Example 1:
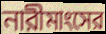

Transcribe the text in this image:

নারীমাংসের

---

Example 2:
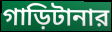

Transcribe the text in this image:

গাড়িটানার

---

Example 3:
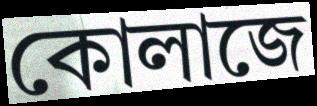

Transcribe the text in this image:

কোলাজে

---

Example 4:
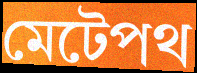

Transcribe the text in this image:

মেটেপথ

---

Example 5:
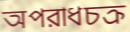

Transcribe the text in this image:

অপরাধচক্র